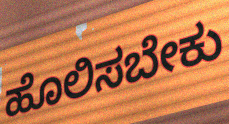
ಹೊಲಿಸಬೇಕು